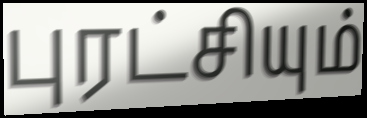
புரட்சியும்